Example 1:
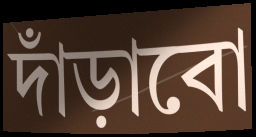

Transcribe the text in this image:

দাঁড়াবো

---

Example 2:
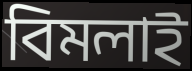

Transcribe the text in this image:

বিমলাই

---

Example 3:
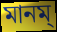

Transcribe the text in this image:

মানম্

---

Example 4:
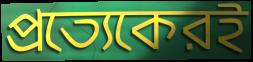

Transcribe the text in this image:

প্রত্যেকেরই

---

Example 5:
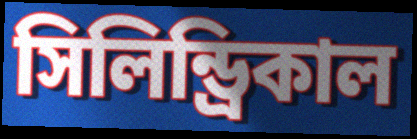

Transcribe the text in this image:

সিলিন্ড্রিকাল